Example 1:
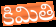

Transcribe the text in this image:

కిమితి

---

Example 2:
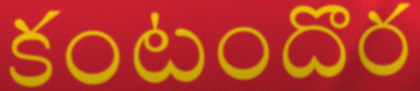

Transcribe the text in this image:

కంటందొర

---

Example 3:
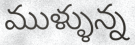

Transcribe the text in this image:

ముళ్ళున్న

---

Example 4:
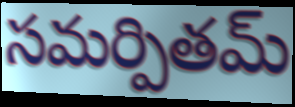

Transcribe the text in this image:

సమర్పితమ్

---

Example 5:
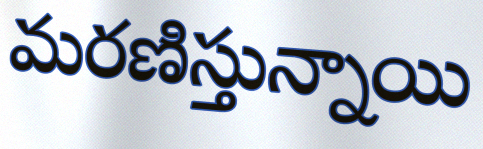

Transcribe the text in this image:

మరణిస్తున్నాయి